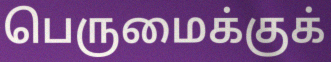
பெருமைக்குக்